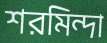
শরমিন্দা